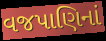
વજપાણિનાં